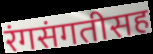
रंगसंगतीसह